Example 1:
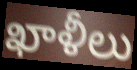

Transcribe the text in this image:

ఖాళీలు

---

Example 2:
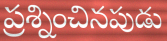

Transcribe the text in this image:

ప్రశ్నించినపుడు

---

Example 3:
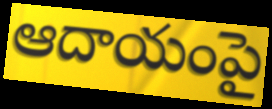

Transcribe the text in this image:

ఆదాయంపై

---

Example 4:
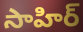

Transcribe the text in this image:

సాహిర్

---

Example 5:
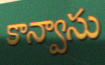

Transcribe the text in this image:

కాన్వాసు